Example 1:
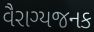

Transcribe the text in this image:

વૈરાગ્યજનક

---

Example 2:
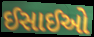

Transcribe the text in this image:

ઈસાઈઓ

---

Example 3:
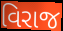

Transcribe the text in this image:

વિરાજ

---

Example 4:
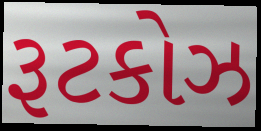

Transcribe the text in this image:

રૂટકોઝ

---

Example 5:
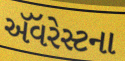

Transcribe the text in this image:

ઍૅવરેસ્ટના